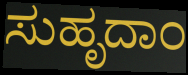
ಸುಹೃದಾಂ